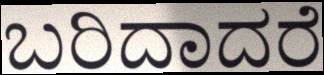
ಬರಿದಾದರೆ